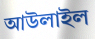
আউলাইল